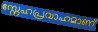
സ്നേഹപ്രവാഹമാണ്